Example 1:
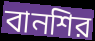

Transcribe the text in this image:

বানশির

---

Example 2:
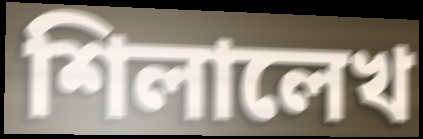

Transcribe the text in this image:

শিলালেখ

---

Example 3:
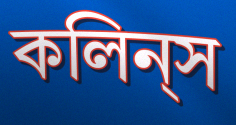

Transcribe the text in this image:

কলিন্‌স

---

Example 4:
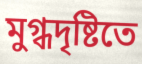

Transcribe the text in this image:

মুগ্ধদৃষ্টিতে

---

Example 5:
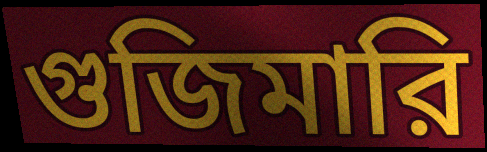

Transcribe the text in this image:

গুজিমারি